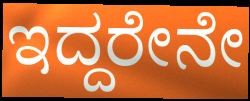
ಇದ್ದರೇನೇ